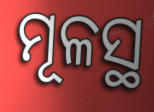
ମୂଳସ୍ଥ